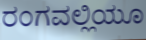
ರಂಗವಲ್ಲಿಯೂ